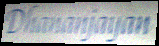
Dhananjayan